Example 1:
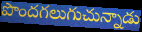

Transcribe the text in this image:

పొందగలుగుచున్నాడు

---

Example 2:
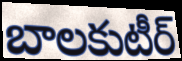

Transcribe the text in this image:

బాలకుటీర్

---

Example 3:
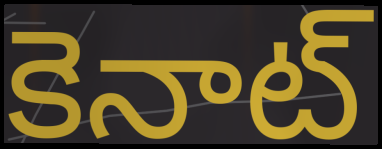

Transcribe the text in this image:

కెనాట్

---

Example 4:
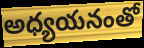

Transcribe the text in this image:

అధ్యయనంతో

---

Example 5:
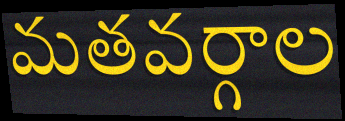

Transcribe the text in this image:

మతవర్గాల